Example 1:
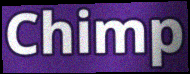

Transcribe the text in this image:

Chimp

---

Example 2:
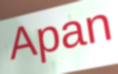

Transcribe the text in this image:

Apan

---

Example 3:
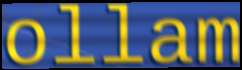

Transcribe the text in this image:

ollam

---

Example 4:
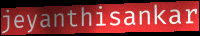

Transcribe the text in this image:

jeyanthisankar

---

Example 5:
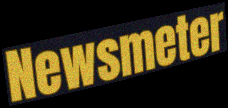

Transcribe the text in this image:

Newsmeter